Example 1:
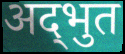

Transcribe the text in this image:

अद्‍भुत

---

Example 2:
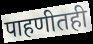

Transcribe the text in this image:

पाहणीतही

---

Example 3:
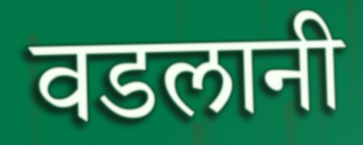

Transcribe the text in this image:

वडलानी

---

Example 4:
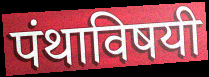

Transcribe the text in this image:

पंथाविषयी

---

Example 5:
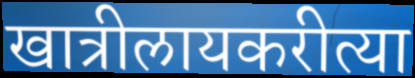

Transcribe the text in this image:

खात्रीलायकरीत्या